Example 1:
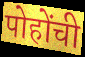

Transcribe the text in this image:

पोहोंची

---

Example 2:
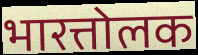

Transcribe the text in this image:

भारत्तोलक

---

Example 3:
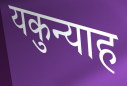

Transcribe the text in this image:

यकुन्याह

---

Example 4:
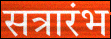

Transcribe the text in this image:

सत्रारंभ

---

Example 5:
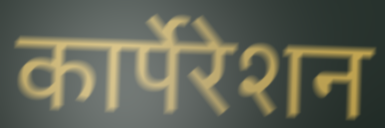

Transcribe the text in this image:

कार्पेरेशन